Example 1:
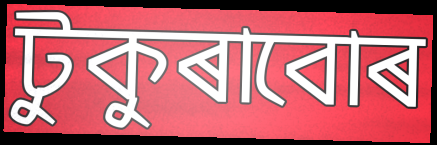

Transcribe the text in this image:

টুকুৰাবোৰ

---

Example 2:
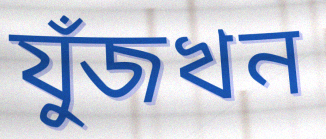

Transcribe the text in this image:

যুঁজখন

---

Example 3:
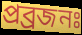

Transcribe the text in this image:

প্ৰব্ৰজনঃ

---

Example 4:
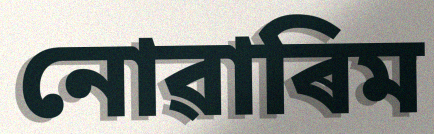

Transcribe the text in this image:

নোৱাৰিম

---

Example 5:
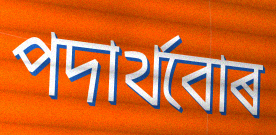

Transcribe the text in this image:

পদাৰ্থবোৰ